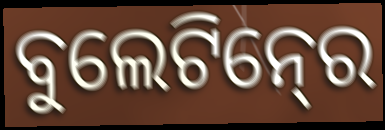
ବୁଲେଟିନ୍‍ରେ